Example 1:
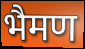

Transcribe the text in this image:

भैमण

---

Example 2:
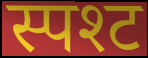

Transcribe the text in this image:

स्पश्ट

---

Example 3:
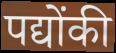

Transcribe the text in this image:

पद्योंकी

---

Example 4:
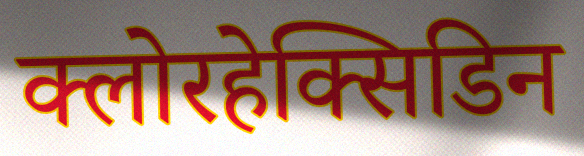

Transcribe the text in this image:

क्लोरहेक्सिडिन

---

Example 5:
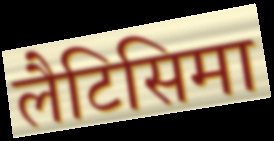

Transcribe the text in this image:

लैटिसिमा